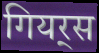
गियर्स